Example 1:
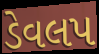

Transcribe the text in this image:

ડેવલપ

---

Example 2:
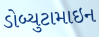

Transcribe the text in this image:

ડોબ્યુટામાઇન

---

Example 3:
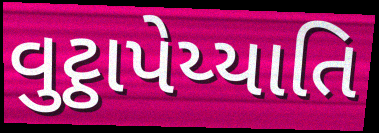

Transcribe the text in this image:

વુટ્ઠાપેય્યાતિ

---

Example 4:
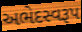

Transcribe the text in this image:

અભેદસ્વરૂપ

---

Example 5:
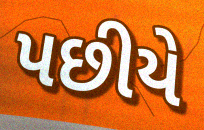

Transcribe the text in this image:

પછીયે